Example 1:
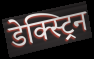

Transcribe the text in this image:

डेक्स्ट्रिन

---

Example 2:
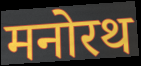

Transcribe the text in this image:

मनोरथ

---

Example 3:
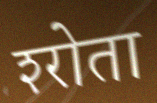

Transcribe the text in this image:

श्रोता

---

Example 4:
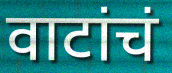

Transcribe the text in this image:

वाटांचं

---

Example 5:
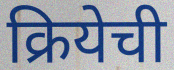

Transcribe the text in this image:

क्रियेची